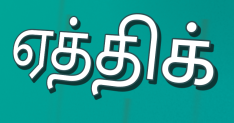
ஏத்திக்